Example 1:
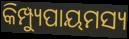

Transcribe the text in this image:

କିମ୍ପ୍ୟୁପାୟମସ୍ୟ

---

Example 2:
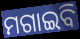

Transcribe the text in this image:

ମଗାଇବି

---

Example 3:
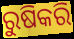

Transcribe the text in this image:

ରୁଷିକରି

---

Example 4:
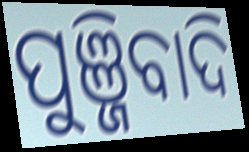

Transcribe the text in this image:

ପୁଞ୍ଜିବାଦି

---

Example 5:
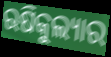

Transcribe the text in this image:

ଋଷିକୁଲ୍ୟାର